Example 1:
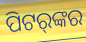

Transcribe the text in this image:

ପିଟର୍‌ଙ୍କର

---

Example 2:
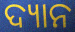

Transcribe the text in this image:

ଦ୍ୟାନ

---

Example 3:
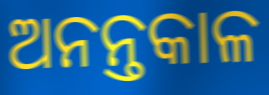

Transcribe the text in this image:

ଅନନ୍ତକାଳ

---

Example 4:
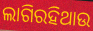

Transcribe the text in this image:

ଲାଗିରହିଥାଉ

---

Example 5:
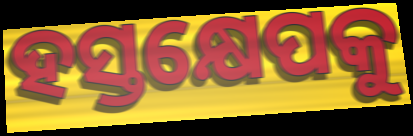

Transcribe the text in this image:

ହସ୍ତକ୍ଷେପକୁ